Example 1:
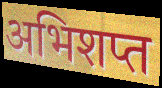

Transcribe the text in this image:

अभिशप्त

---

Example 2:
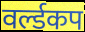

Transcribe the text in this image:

वर्ल्डकप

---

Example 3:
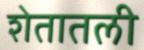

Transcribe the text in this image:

शेतातली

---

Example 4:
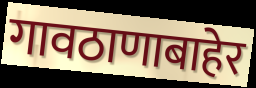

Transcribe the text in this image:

गावठाणाबाहेर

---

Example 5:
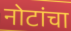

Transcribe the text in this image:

नोटांचा